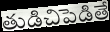
తుడిచిపెడితే